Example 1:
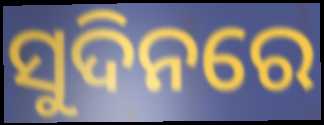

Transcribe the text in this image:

ସୁଦିନରେ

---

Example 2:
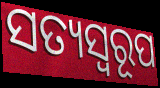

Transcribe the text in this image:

ସତ୍ୟସ୍ୱରୂପ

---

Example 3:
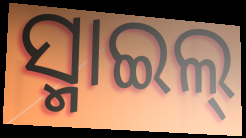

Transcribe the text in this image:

ସ୍ମାଇଲ୍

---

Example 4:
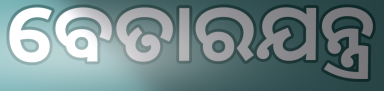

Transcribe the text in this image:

ବେତାରଯନ୍ତ୍ର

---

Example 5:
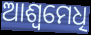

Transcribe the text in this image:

ଆଶ୍ୱମେଧି